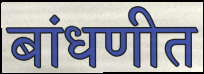
बांधणीत